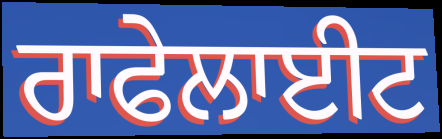
ਰਾਫੇਲਾਈਟ